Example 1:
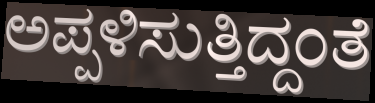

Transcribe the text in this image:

ಅಪ್ಪಳಿಸುತ್ತಿದ್ದಂತೆ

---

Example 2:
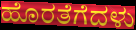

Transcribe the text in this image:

ಹೊರತೆಗೆದಳು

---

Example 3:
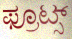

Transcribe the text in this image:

ಫ್ರೂಟ್ಸ್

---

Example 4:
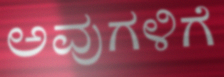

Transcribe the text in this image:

ಅವುಗಳಿಗೆ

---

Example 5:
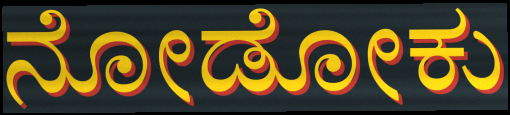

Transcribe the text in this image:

ನೋಡೋಕು